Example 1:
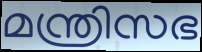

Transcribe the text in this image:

മന്ത്രിസഭ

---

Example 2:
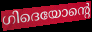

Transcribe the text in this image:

ഗിദെയോന്റെ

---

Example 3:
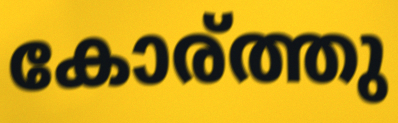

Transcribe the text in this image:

കോര്ത്തു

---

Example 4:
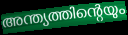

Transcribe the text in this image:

അന്ത്യത്തിന്റെയും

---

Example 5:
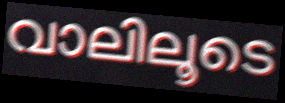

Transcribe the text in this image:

വാലിലൂടെ